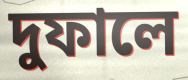
দুফালে